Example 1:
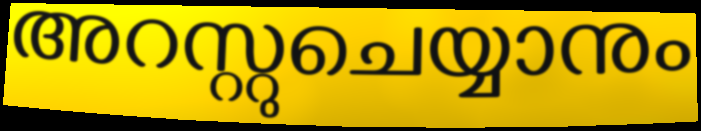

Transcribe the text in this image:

അറസ്റ്റുചെയ്യാനും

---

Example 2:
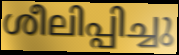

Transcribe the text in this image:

ശീലിപ്പിച്ചു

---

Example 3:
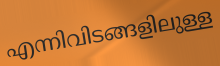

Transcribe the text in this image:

എന്നിവിടങ്ങളിലുള്ള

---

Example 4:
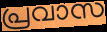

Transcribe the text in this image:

പ്രവാസ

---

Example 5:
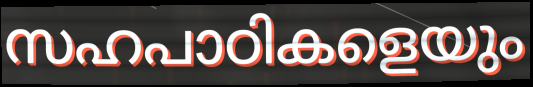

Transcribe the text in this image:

സഹപാഠികളെയും